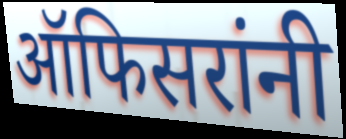
ऑफिसरांनी